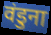
वंडुना